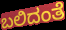
ಬಲಿದಂತೆ